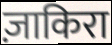
ज़ाकिरा